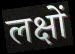
लक्षों